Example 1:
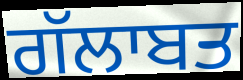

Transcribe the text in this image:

ਗੱਲਾਬਤ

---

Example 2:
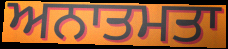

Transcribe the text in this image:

ਅਨਾਤਮਤਾ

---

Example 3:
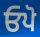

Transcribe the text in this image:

ਓਪੋ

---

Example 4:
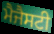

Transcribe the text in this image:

ਮੈਜੈਸਟੀ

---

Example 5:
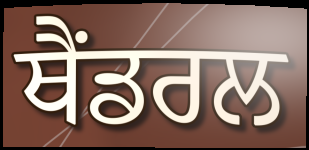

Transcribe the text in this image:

ਥੈਂਡਰਲ